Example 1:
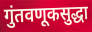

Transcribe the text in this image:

गुंतवणूकसुद्धा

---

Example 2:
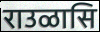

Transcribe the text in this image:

राउळासि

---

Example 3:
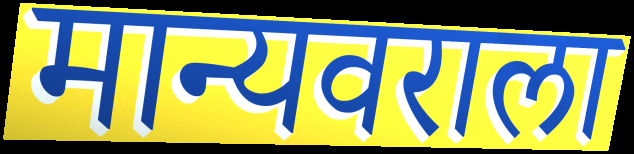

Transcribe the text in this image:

मान्यवराला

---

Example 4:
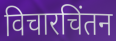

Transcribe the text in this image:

विचारचिंतन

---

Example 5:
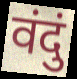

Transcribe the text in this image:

वंदुं